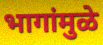
भागांमुळे